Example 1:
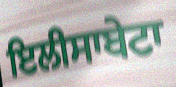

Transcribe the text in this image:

ਇਲੀਸਾਬੇਟਾ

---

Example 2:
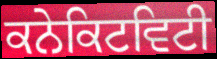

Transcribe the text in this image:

ਕਨੇਕਿਟਵਿਟੀ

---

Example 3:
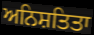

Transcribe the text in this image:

ਅਨਿਸ਼ਤਿਤਾ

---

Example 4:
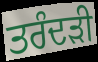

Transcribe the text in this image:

ਤਰੰਦੜੀ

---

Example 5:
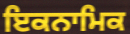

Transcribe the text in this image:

ਇਕਨਾਮਿਕ